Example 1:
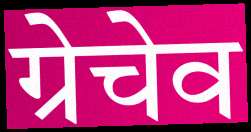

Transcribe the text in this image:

ग्रेचेव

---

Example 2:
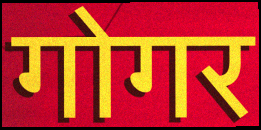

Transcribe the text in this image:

गोगर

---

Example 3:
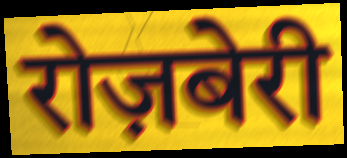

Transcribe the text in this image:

रोज़बेरी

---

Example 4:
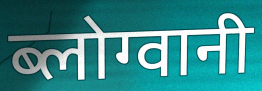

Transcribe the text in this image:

ब्लोग्वानी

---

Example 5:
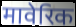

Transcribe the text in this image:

मावेरिक